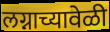
लग्नाच्यावेळी